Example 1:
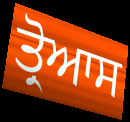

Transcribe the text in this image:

ਤ੍ਰੋਆਸ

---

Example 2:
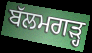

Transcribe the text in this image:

ਬੱਲਮਗੜ੍ਹ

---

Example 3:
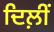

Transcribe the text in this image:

ਦਿਲ਼ੀਂ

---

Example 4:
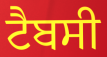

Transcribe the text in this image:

ਟੈਬਸੀ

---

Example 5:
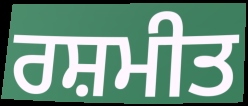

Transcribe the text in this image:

ਰਸ਼ਮੀਤ